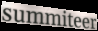
summiteer